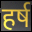
हर्ष